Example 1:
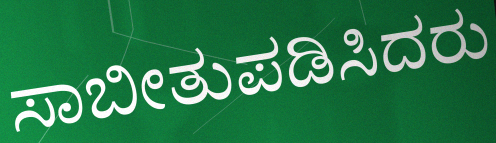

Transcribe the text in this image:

ಸಾಬೀತುಪಡಿಸಿದರು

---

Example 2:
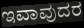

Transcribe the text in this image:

ಇವಾವುದರ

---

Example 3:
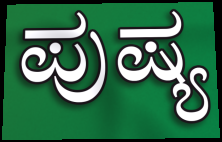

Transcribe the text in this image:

ಪುಷ್ಯ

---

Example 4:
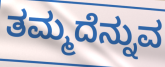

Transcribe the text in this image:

ತಮ್ಮದೆನ್ನುವ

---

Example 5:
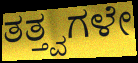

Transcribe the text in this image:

ತತ್ತ್ವಗಳೇ